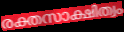
രക്തസാക്ഷിത്വം